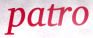
patro